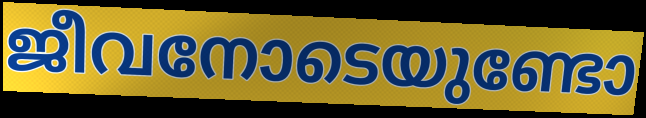
ജീവനോടെയുണ്ടോ